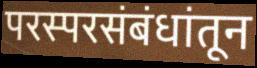
परस्परसंबंधांतून